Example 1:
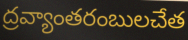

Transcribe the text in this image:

ద్రవ్యాంతరంబులచేత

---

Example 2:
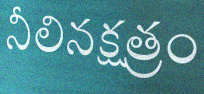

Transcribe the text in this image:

నీలినక్షత్రం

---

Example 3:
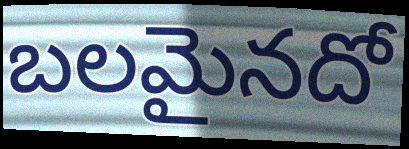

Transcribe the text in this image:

బలమైనదో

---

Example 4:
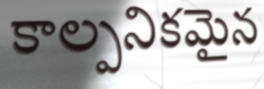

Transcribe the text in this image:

కాల్పనికమైన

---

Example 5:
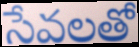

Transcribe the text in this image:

సేవలతో